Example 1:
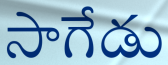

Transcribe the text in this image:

సాగేడు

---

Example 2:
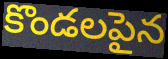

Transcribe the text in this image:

కొండలపైన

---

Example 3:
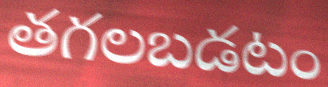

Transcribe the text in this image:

తగలబడటం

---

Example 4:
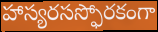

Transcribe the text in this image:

హాస్యరసస్ఫోరకంగా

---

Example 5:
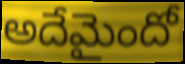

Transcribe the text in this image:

అదేమైందో